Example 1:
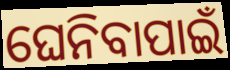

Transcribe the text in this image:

ଘେନିବାପାଇଁ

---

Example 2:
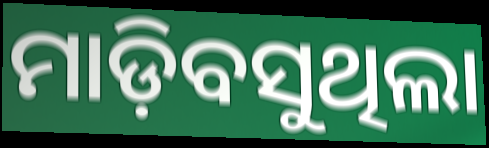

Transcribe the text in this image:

ମାଡ଼ିବସୁଥିଲା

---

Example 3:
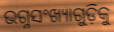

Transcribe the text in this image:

ଭଗ୍ନସଂଖ୍ୟାଗୁଡ଼ିକୁ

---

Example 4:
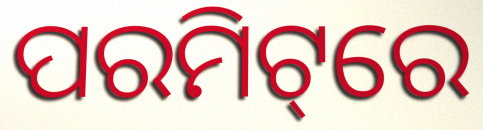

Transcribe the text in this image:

ପରମିଟ୍‌ରେ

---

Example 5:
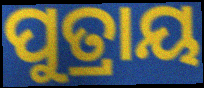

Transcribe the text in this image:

ପୁତ୍ରାୟ